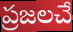
ప్రజలచే